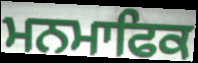
ਮਨਮਾਫਿਕ